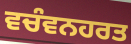
ਵਚੰਵਨਹਰਤ